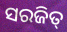
ସରଜିତ୍